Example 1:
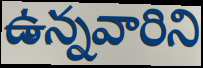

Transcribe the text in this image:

ఉన్నవారిని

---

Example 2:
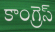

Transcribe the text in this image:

కాంగ్రెస్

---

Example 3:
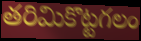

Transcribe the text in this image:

తరిమికొట్టగలం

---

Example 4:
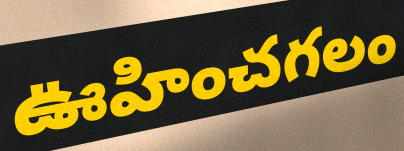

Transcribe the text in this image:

ఊహించగలం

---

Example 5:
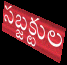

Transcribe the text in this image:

సబ్జక్టుల